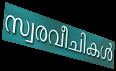
സ്വരവീചികൾ